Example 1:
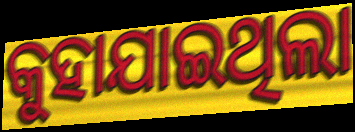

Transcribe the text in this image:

କୁହାଯାଇଥିଲା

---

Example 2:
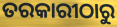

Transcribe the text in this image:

ତରକାରୀଠାରୁ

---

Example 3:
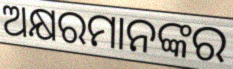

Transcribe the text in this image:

ଅକ୍ଷରମାନଙ୍କର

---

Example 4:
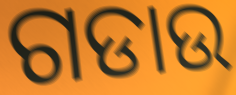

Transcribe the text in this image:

ଗଡାଉ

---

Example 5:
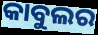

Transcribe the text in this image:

କାବୁଲର